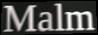
Malm